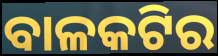
ବାଳକଟିର